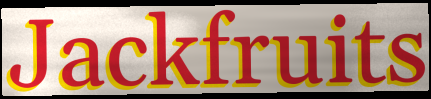
Jackfruits